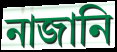
নাজানি